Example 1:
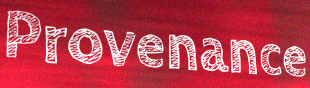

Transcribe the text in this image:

Provenance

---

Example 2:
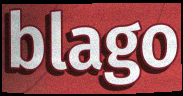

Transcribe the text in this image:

blago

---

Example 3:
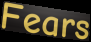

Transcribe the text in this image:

Fears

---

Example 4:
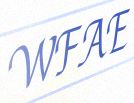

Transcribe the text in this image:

WFAE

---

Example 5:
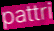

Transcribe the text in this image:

pattri